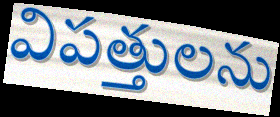
విపత్తులను